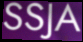
SSJA